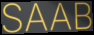
SAAB